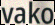
vako